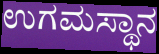
ಉಗಮಸ್ಥಾನ